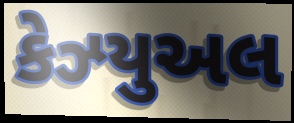
કેઝ્યુઅલ